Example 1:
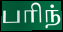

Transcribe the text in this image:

பரிந்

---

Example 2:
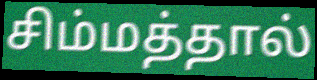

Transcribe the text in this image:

சிம்மத்தால்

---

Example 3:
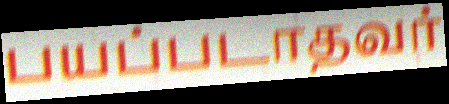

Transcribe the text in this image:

பயப்படாதவர்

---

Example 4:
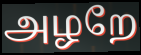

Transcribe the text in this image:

அழறே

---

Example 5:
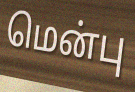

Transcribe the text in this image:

மென்பு